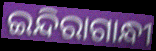
ଇନ୍ଦିରାଗାନ୍ଧୀ